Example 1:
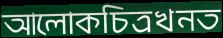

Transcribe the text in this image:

আলোকচিত্ৰখনত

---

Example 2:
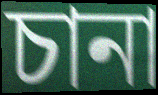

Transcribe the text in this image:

চানা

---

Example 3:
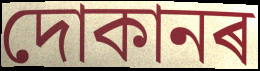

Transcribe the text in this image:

দোকানৰ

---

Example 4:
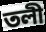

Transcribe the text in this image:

তলী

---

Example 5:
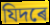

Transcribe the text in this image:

যিদৰে